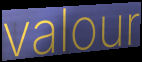
valour